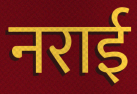
नराई